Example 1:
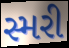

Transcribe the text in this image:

સ્મરી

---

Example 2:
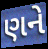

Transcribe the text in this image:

ણને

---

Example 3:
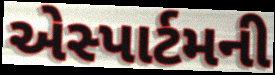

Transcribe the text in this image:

એસ્પાર્ટમની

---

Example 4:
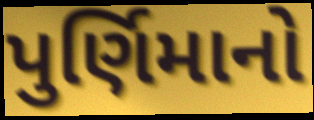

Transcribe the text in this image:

પુર્ણિમાનો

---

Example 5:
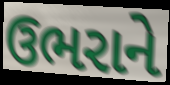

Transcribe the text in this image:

ઉભરાને